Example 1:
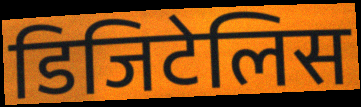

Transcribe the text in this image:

डिजिटेलिस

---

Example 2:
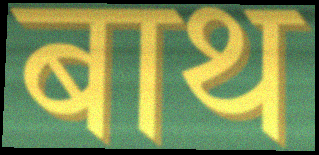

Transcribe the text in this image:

बाथ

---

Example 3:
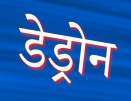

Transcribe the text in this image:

डेड्रोन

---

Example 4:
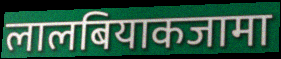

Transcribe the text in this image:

लालबियाकजामा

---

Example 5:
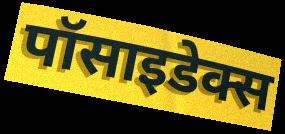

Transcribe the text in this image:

पॉसाइडेक्स